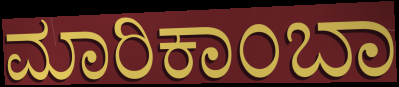
ಮಾರಿಕಾಂಬಾ